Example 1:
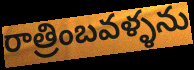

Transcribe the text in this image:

రాత్రింబవళ్ళను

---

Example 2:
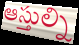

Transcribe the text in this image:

ఆస్తుల్ని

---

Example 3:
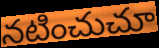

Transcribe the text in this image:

నటించుచూ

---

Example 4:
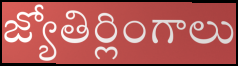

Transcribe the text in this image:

జ్యోతిర్లింగాలు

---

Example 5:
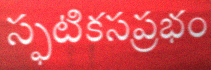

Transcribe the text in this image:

స్ఫటికసప్రభం